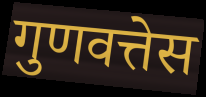
गुणवत्तेस